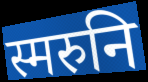
स्मरुनि